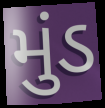
મુંડ